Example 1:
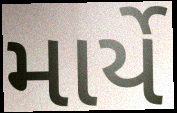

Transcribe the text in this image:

માર્યે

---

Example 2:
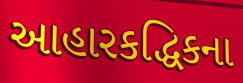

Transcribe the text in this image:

આહારકદ્ધિકના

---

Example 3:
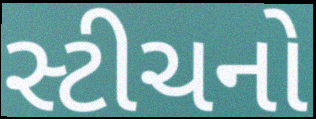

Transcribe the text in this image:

સ્ટીચનો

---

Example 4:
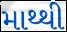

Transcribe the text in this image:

માથ્થી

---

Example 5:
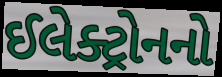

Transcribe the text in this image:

ઈલેક્ટ્રોનનો